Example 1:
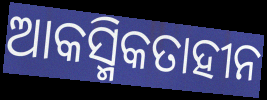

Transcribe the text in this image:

ଆକସ୍ମିକତାହୀନ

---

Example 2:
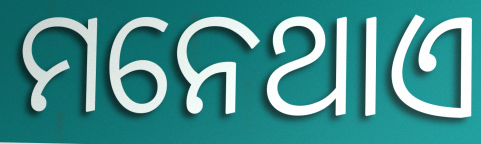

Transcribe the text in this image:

ମନେଥାଏ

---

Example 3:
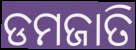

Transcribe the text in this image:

ଡମଜାତି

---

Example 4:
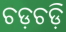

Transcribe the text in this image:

ଚଡ଼ଚଡ଼ି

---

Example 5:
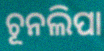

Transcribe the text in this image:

ଚୂନଲିପା